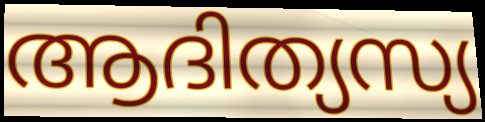
ആദിത്യസ്യ